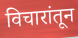
विचारांतून